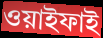
ওয়াইফাই